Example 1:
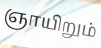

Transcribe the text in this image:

ஞாயிறும்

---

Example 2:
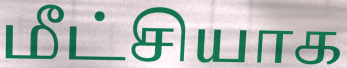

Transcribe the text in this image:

மீட்சியாக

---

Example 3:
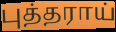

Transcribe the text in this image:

புத்தராய்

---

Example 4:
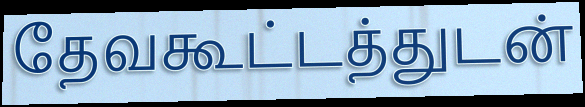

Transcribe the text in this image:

தேவகூட்டத்துடன்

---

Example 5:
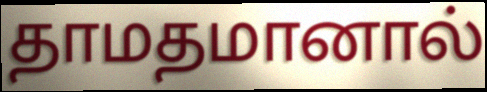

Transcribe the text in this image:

தாமதமானால்